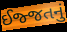
ઈજ્જતનું